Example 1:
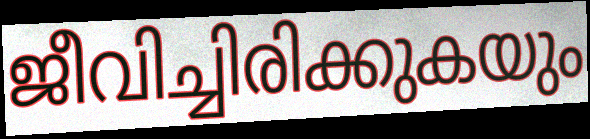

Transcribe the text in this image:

ജീവിച്ചിരിക്കുകയും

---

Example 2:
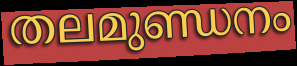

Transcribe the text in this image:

തലമുണ്ഡനം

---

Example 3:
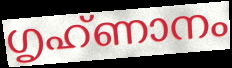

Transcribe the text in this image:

ഗൃഹ്ണാനം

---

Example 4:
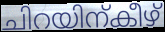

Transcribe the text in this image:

ചിറയിന്കീഴ്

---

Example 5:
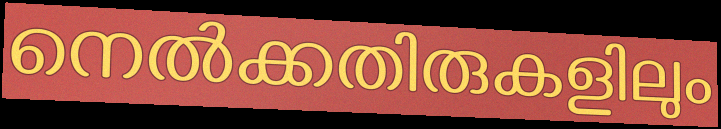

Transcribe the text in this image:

നെൽക്കതിരുകളിലും